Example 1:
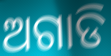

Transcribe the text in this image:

ଅଗାଡି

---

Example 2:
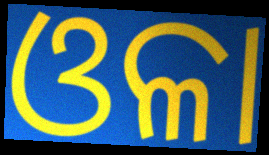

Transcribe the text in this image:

ଓଳା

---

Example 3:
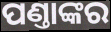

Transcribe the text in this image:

ପଣ୍ତାଙ୍କର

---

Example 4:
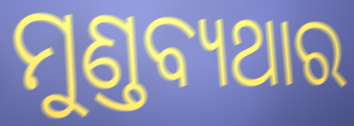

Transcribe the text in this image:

ମୁଣ୍ଡବ୍ୟଥାର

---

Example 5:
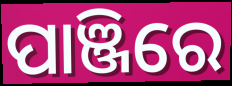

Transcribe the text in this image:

ପାଞ୍ଜିରେ